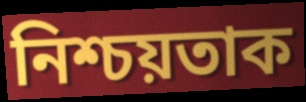
নিশ্চয়তাক